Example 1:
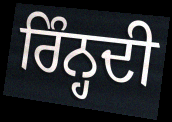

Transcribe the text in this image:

ਰਿੰਨ੍ਹਦੀ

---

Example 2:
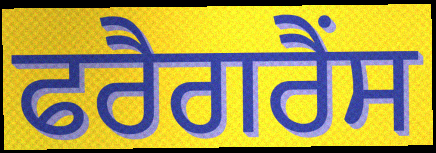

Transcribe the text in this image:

ਫਰੈਗਰੈਂਸ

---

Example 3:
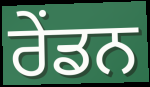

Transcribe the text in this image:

ਰੇਂਡਨ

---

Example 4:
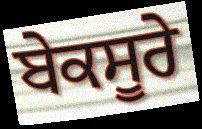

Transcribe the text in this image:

ਬੇਕਸੂਰੇ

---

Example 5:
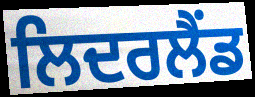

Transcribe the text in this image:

ਲਿਦਰਲੈਂਡ